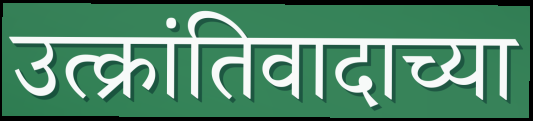
उत्क्रांतिवादाच्या